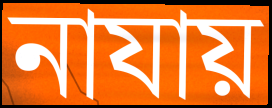
নাযায়